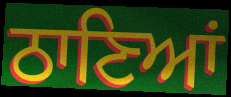
ਠਾਣਿਆਂ